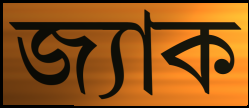
জ্যাক